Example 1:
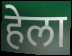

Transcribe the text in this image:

हेला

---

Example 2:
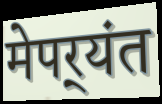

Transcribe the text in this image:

मेपर्यंत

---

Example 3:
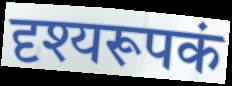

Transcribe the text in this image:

दृश्‍यरूपकं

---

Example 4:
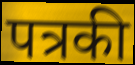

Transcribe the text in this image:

पत्रकी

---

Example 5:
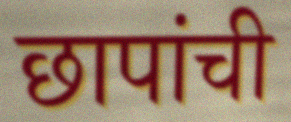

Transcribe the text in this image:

छापांची